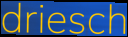
driesch